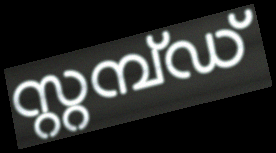
സ്റ്റമ്പ്ഡ്